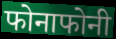
फोनाफोनी